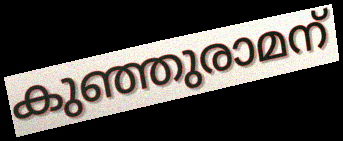
കുഞ്ഞുരാമന്